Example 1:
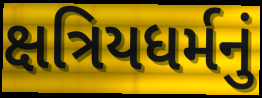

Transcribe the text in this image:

ક્ષત્રિયધર્મનું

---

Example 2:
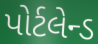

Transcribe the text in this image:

પોર્ટલેન્ડ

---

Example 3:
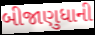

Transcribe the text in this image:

બીજાણુધાની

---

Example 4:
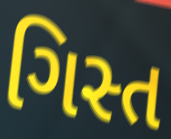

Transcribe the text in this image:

ગિસ્ત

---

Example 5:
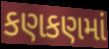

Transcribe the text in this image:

કણકણમાં